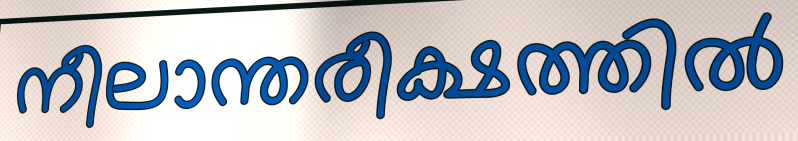
നീലാന്തരീക്ഷത്തിൽ